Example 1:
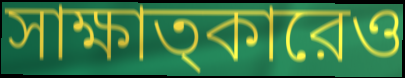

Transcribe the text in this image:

সাক্ষাত্কারেও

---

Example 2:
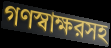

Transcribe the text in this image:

গণস্বাক্ষরসহ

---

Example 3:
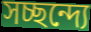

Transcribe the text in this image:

সচ্ছন্দ্যে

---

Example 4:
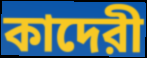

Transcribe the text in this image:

কাদেরী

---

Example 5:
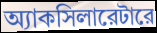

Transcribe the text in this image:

অ্যাকসিলারেটারে